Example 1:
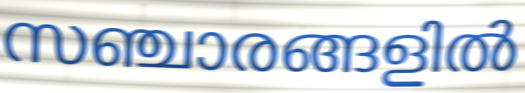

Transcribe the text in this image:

സഞ്ചാരങ്ങളിൽ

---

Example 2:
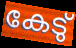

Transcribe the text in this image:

കേടു്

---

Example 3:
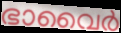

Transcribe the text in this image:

ഭാവൈർ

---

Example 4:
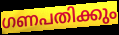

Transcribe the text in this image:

ഗണപതിക്കും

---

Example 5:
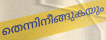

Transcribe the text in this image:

തെന്നിനീങ്ങുകയും